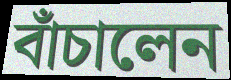
বাঁচালেন